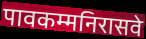
पावकम्मनिरासवे